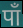
पाँ